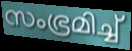
സംഭ്രമിച്ച്